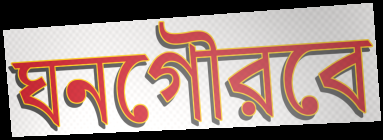
ঘনগৌরবে